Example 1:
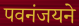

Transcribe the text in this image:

पवनंजयने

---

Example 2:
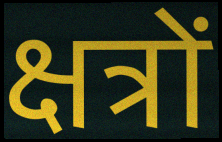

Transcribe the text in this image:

क्षत्रों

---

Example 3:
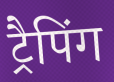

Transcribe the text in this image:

ट्रैपिंग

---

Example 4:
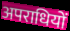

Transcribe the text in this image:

अपराधियों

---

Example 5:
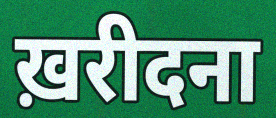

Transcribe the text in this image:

ख़रीदना